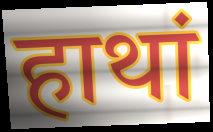
हाथां